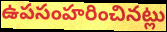
ఉపసంహరించినట్లు